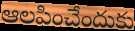
ఆలపించేందుకు